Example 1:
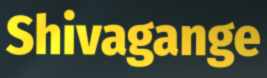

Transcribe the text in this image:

Shivagange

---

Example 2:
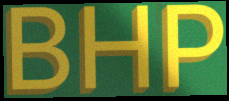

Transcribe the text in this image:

BHP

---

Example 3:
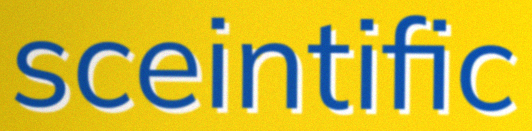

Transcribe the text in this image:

sceintific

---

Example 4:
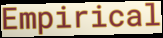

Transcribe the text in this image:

Empirical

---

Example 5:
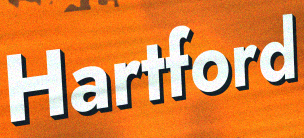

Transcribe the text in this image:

Hartford